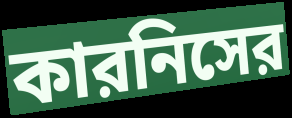
কারনিসের